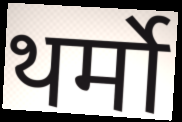
थर्मो